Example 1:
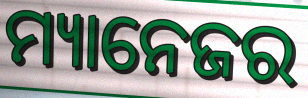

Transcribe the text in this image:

ମ୍ୟାନେଜର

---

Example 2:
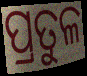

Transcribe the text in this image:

ପ୍ରତୁଳ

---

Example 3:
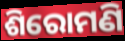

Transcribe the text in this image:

ଶିରୋମଣି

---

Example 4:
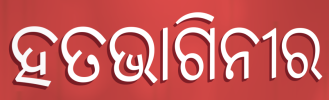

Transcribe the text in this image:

ହତଭାଗିନୀର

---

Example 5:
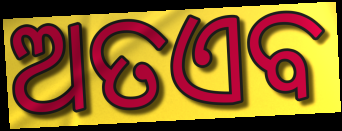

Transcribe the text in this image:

ଅତଏବ